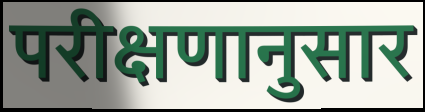
परीक्षणानुसार